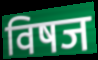
विषज